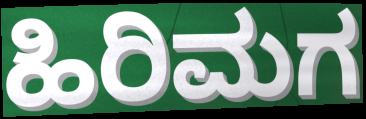
ಹಿರಿಮಗ